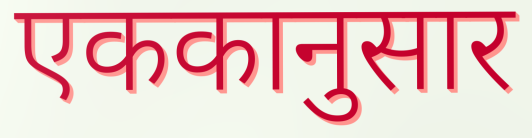
एककानुसार